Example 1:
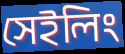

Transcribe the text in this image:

সেইলিং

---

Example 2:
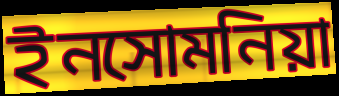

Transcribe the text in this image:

ইনসোমনিয়া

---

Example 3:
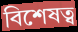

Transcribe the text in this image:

বিশেষত্ব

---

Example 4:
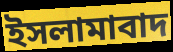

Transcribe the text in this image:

ইসলামাবাদ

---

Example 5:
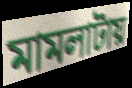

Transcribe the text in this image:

মামলাটায়